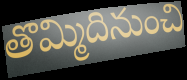
తొమ్మిదినుంచి